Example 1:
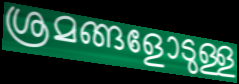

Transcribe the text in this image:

ശ്രമങ്ങളോടുള്ള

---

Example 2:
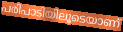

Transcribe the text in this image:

പരിപാടിയിലൂടെയാണ്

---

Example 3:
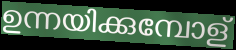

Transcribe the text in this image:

ഉന്നയിക്കുമ്പോള്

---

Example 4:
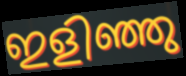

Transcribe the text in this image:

ഇളിഞ്ഞു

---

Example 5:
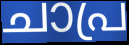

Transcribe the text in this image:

ചാപ്ര